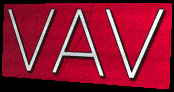
VAV